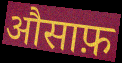
औसाफ़